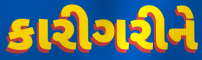
કારીગરીને